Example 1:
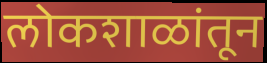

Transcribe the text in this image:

लोकशाळांतून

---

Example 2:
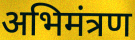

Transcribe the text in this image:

अभिमंत्रण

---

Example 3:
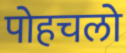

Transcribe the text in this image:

पोहचलो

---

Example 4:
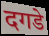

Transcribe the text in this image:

दगडे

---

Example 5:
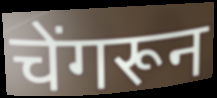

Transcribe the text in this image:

चेंगरून